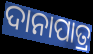
ଦାନାପାତ୍ର